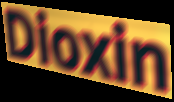
Dioxin